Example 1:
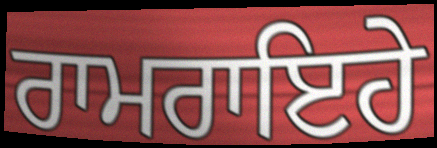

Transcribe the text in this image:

ਰਾਮਰਾਇਹੇ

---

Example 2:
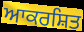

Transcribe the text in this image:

ਆਕਰਸ਼ਿਤ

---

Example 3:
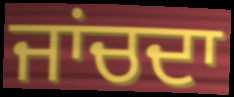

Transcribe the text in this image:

ਜਾਂਚਦਾ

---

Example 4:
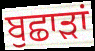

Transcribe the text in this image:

ਬੁਛਾੜਾਂ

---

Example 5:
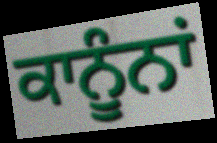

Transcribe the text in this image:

ਕਾਨੂੰਨਾਂ